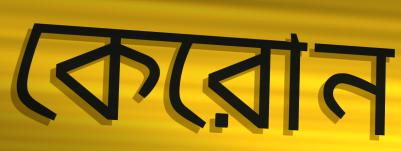
কেরোন